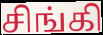
சிங்கி